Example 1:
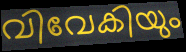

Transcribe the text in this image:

വിവേകിയും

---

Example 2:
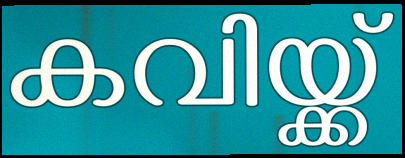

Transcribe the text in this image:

കവിയ്ക്ക്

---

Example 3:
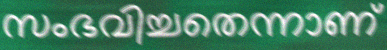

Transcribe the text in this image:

സംഭവിച്ചതെന്നാണ്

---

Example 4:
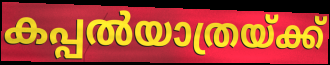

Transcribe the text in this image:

കപ്പൽയാത്രയ്ക്ക്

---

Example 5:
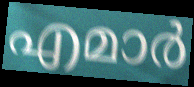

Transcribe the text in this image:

എമാർ